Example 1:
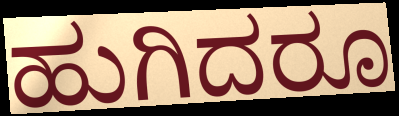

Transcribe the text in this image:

ಹುಗಿದರೂ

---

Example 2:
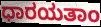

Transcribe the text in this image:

ಧಾರಯತಾಂ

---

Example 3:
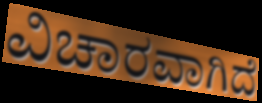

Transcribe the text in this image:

ವಿಚಾರವಾಗಿದೆ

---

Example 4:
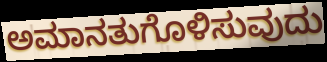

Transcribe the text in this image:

ಅಮಾನತುಗೊಳಿಸುವುದು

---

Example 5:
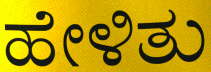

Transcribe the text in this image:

ಹೇಳಿತು